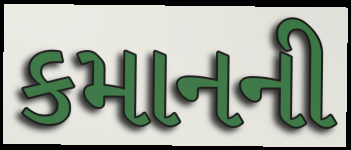
કમાનની